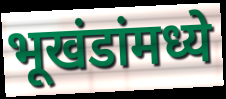
भूखंडांमध्ये